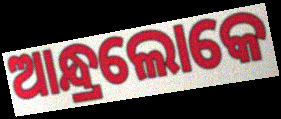
ଆନ୍ଧ୍ରଲୋକେ